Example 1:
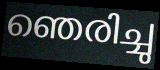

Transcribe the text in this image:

ഞെരിച്ചു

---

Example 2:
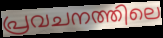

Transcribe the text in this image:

പ്രവചനത്തിലെ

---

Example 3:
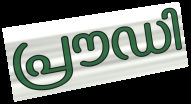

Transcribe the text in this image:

പ്രൗഡി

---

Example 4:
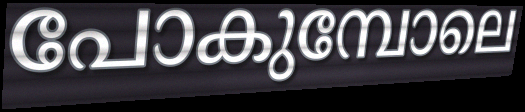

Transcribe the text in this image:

പോകുമ്പോലെ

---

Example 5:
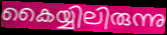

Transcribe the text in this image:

കൈയ്യിലിരുന്നു